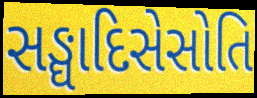
સઙ્ઘાદિસેસોતિ